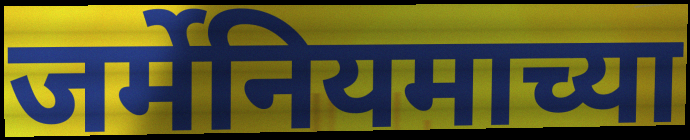
जर्मेनियमाच्या